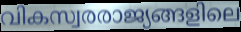
വികസ്വരരാജ്യങ്ങളിലെ